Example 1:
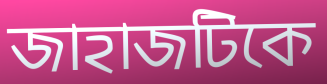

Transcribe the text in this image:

জাহাজটিকে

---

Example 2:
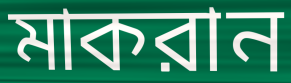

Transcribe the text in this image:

মাকরান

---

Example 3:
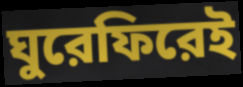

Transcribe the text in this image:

ঘুরেফিরেই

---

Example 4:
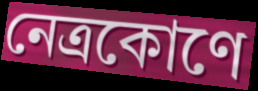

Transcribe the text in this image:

নেত্রকোণে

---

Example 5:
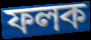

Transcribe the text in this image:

ফলক